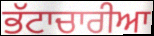
ਭੱਟਾਚਾਰੀਆ